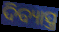
ଦିବ୍ୟାସ୍ତ୍ର